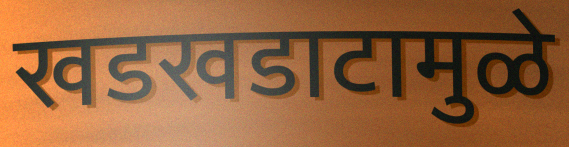
खडखडाटामुळे